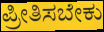
ಪ್ರೀತಿಸಬೇಕು